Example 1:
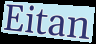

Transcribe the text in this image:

Eitan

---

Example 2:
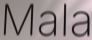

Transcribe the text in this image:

Mala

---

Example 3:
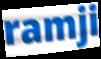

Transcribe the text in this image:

ramji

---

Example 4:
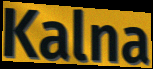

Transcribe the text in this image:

Kalna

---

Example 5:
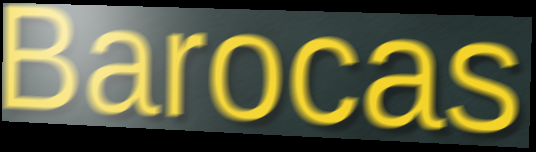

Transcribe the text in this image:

Barocas